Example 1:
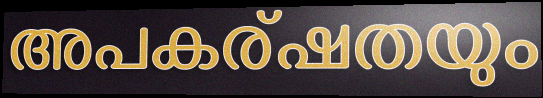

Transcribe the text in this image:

അപകര്ഷതയും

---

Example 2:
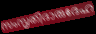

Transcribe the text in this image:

സംസൃതിദാരുദേഹ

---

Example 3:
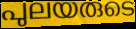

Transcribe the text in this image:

പുലയരുടെ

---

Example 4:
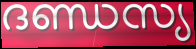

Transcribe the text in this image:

ദണ്ഡസ്യ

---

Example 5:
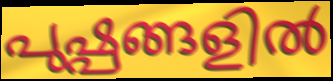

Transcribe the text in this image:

പുഷ്പങ്ങളിൽ